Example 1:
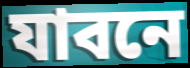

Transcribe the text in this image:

যাবনে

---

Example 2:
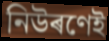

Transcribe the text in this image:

নিউৰণেই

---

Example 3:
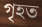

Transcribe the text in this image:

গৃহত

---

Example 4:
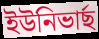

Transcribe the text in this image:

ইউনিভাৰ্ছ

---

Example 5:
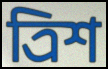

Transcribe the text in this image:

ত্ৰিশ